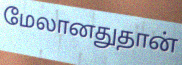
மேலானதுதான்